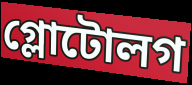
গ্লোটোলগ